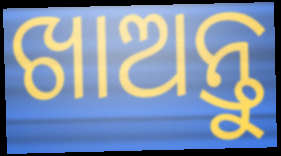
ଖାଅନ୍ତୁ